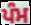
ਪੰਮ